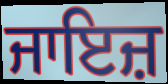
ਜਾਇਜ਼